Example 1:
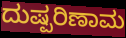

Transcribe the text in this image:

ದುಷ್ಪರಿಣಾಮ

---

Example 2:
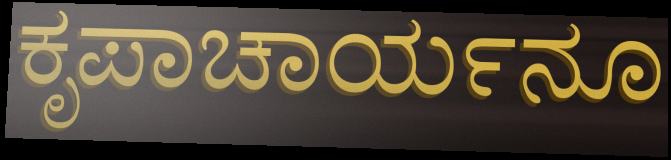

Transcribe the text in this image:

ಕೃಪಾಚಾರ್ಯನೂ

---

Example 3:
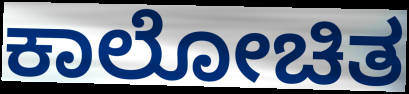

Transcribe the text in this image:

ಕಾಲೋಚಿತ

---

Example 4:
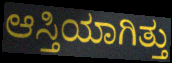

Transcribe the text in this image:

ಆಸ್ತಿಯಾಗಿತ್ತು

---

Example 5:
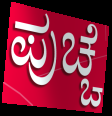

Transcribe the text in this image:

ಪುಚ್ಚೆ